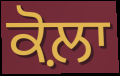
ਕੋਲ਼ਾ